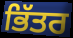
ਭਿੱਤਰ